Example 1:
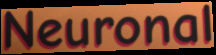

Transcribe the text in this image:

Neuronal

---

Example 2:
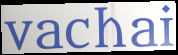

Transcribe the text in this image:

vachai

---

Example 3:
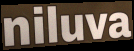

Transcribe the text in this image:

niluva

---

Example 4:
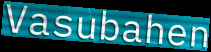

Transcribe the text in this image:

Vasubahen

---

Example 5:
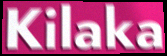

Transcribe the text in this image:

Kilaka